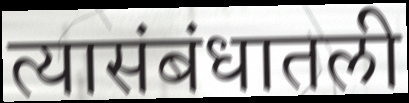
त्यासंबंधातली